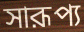
সারূপ্য